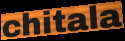
chitala